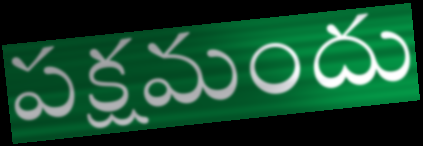
పక్షమందు